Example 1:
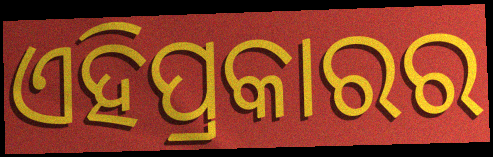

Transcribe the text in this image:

ଏହିପ୍ରକାରର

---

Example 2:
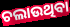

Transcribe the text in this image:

ଚଲାଉଥିବା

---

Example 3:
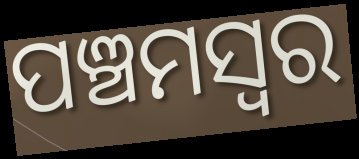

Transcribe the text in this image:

ପଞ୍ଚମସ୍ଵର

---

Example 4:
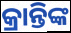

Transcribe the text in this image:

କ୍ରାନ୍ତିଙ୍କ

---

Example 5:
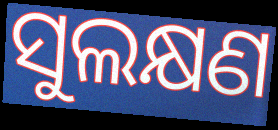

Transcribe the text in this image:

ସୁଲକ୍ଷଣ